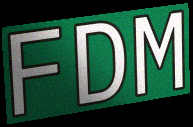
FDM